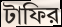
টাফির